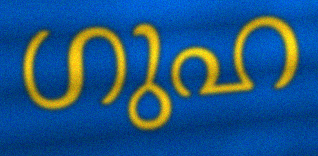
ഗുഹ